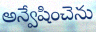
అన్వేషించెను